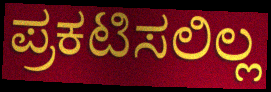
ಪ್ರಕಟಿಸಲಿಲ್ಲ